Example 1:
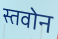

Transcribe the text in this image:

स्तवोन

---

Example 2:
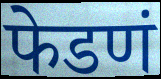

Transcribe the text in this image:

फेडणं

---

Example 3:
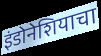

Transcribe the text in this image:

इंडोनेशियाचा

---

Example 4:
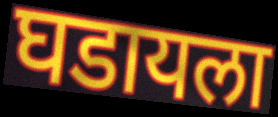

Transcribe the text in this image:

घडायला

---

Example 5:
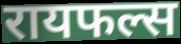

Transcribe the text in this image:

रायफल्स